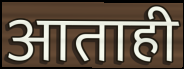
आताही